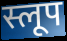
स्लूप